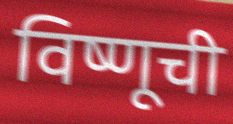
विष्णूची